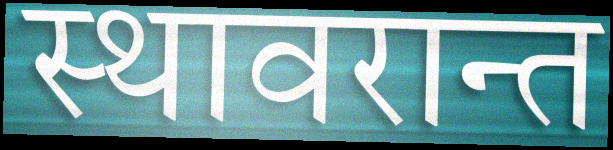
स्थावरान्त